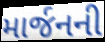
માર્જનની